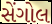
સેંગોલ